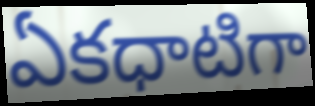
ఏకధాటిగా